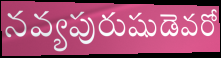
నవ్యపురుషుడెవరో